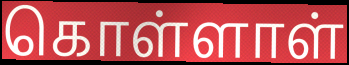
கொள்ளாள்